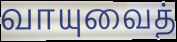
வாயுவைத்